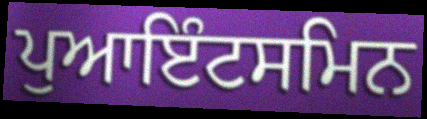
ਪੁਆਇੰਟਸਮਿਨ